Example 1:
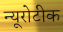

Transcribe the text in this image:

न्यूरोटीक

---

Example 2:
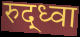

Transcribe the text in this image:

रुद्ध्वा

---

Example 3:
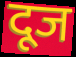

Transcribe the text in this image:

दूज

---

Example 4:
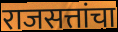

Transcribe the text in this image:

राजसत्तांचा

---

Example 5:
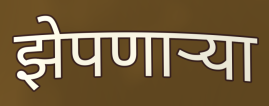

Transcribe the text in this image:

झेपणार्‍या